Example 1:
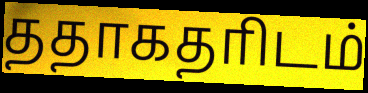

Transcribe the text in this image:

ததாகதரிடம்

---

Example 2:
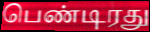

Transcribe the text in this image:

பெண்டிரது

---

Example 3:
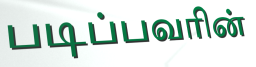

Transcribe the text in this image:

படிப்பவரின்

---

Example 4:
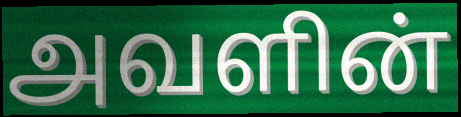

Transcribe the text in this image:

அவளின்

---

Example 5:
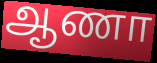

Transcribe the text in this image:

ஆணா